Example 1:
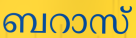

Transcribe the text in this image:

ബറാസ്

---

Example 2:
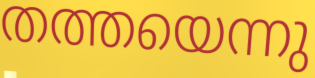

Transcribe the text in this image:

തത്തയെന്നു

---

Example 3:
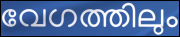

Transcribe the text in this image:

വേഗത്തിലും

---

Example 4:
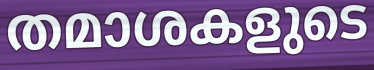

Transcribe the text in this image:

തമാശകളുടെ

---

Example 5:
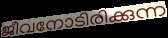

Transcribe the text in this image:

ജീവനോടിരിക്കുന്ന